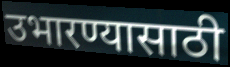
उभारण्यासाठी